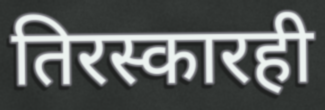
तिरस्कारही